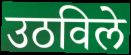
उठविले